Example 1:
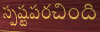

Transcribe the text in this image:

స్పష్టపరచింది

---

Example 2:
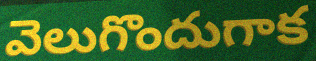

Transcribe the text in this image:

వెలుగొందుగాక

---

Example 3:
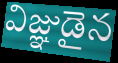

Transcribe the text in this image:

విజ్ఞుడైన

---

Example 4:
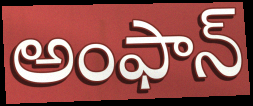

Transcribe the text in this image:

అంఫాన్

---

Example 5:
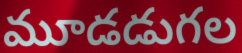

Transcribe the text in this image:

మూడడుగల